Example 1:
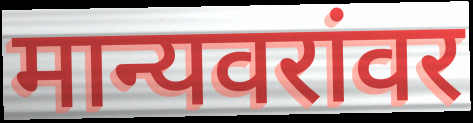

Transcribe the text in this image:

मान्यवरांवर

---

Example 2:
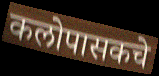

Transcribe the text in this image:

कलोपासकचे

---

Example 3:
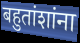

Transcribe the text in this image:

बहुतांशांना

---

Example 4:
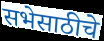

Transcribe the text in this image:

सभेसाठीचे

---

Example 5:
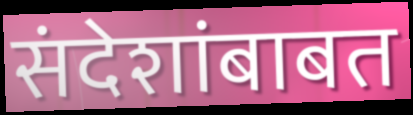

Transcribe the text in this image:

संदेशांबाबत